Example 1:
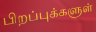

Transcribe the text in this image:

பிறப்புக்களுள்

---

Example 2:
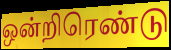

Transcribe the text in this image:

ஒன்றிரெண்டு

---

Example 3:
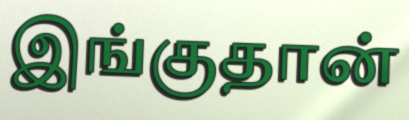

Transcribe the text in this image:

இங்குதான்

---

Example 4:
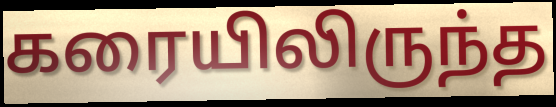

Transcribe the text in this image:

கரையிலிருந்த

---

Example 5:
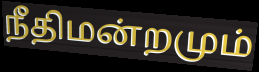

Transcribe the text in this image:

நீதிமன்றமும்